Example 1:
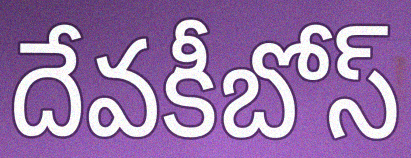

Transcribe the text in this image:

దేవకీబోస్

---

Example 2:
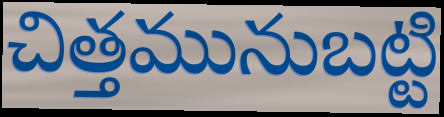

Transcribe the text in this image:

చిత్తమునుబట్టి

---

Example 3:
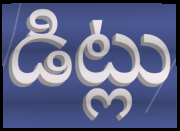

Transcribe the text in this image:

డిట్లు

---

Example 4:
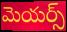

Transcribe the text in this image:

మెయర్స్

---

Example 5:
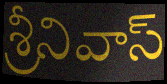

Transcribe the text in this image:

శ్రీనివాస్